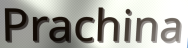
Prachina